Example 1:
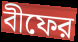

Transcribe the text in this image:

বীফের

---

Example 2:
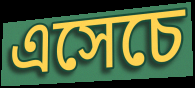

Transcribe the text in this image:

এসেচে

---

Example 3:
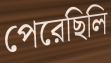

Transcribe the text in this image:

পেরেছিলি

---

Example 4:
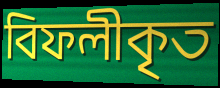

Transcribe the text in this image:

বিফলীকৃত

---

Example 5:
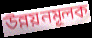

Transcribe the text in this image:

উন্নয়নমূলক